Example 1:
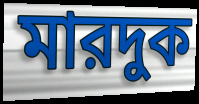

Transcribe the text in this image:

মারদুক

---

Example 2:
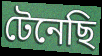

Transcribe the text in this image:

টেনেছি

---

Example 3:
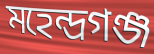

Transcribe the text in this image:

মহেন্দ্রগঞ্জ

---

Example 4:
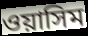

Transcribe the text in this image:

ওয়াসিম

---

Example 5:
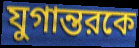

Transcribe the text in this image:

যুগান্তরকে